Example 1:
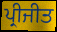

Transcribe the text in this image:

ਪ੍ਰੀਜੀਤ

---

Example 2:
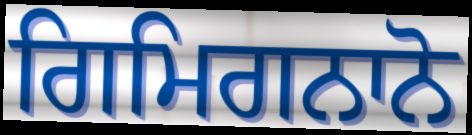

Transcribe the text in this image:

ਗਿਮਿਗਨਾਨੋ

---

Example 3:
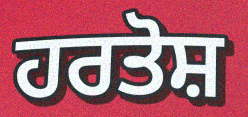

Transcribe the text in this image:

ਹਰਤੋਸ਼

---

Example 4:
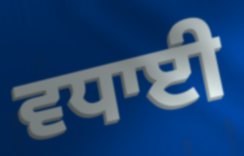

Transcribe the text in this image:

ਵਧਾਈ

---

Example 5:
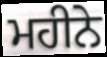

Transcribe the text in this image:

ਮਹੀਨੇ